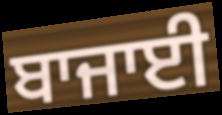
ਬਾਜਾਈ